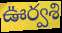
ఊర్వశి